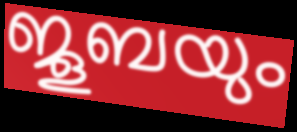
ജൂബയും